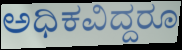
ಅಧಿಕವಿದ್ದರೂ